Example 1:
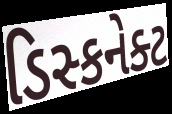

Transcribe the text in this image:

ડિસ્કનેક્ટ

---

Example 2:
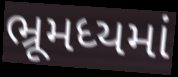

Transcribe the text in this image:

ભ્રૂમધ્યમાં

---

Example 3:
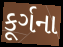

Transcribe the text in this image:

કૂર્ગના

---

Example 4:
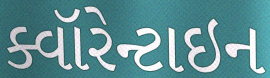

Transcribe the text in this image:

ક્વૉરેન્ટાઇન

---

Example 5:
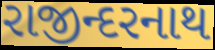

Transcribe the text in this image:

રાજીન્દરનાથ